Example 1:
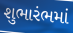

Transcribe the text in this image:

શુભારંભમાં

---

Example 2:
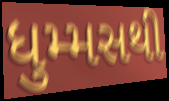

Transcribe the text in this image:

ધુમ્મસથી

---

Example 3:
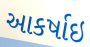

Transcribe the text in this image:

આકર્ષાઇ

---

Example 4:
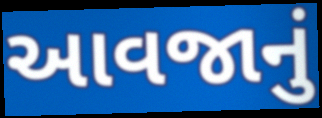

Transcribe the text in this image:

આવજાનું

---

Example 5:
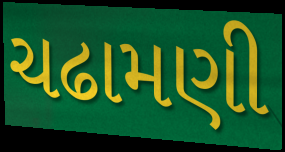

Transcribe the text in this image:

ચઢામણી